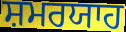
ਸ਼ਮਰਯਾਹ